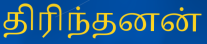
திரிந்தனன்